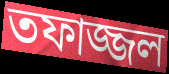
তফাজ্জল